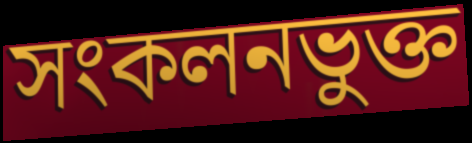
সংকলনভুক্ত